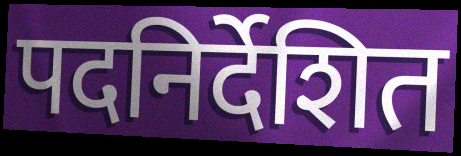
पदनिर्देशित